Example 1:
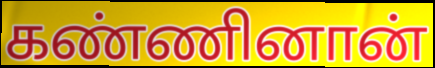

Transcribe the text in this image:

கண்ணினான்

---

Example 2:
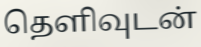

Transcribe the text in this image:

தெளிவுடன்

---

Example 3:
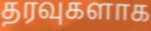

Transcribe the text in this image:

தரவுகளாக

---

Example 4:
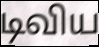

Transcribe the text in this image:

டிவிய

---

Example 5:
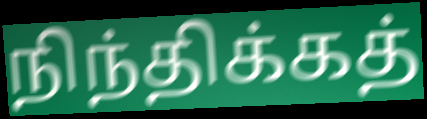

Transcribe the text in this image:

நிந்திக்கத்